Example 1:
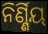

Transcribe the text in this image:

ନିର୍ଣ୍ଣିୟ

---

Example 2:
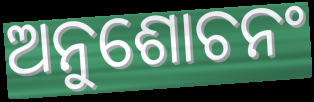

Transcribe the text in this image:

ଅନୁଶୋଚନଂ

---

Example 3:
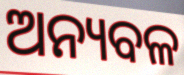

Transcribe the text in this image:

ଅନ୍ୟବଳ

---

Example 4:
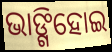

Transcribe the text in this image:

ଭାଙ୍ଗିହୋଇ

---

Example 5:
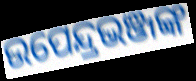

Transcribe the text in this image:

ଉପେନ୍ଦ୍ରଭଞ୍ଜଙ୍କ